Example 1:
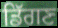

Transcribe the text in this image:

ਡਿੱਗਣ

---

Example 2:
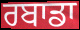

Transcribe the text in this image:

ਰਬਾਡਾ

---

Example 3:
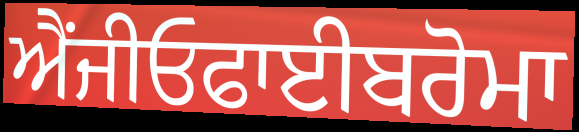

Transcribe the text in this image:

ਐਂਜੀਓਫਾਈਬਰੋਮਾ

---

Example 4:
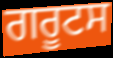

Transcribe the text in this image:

ਗਰੂਟਸ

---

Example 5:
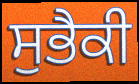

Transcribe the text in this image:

ਸੁਭੈਕੀ